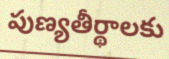
పుణ్యతీర్థాలకు